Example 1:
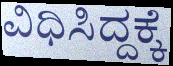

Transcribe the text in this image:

ವಿಧಿಸಿದ್ದಕ್ಕೆ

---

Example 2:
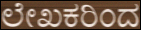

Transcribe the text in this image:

ಲೇಖಕರಿಂದ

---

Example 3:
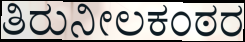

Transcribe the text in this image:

ತಿರುನೀಲಕಂಠರ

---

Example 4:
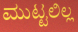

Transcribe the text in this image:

ಮುಟ್ಟಲಿಲ್ಲ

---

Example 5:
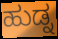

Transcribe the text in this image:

ಹುಡ್ನ